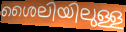
ശൈലിയിലുള്ള